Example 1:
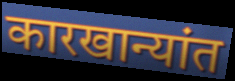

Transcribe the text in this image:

कारखान्यांत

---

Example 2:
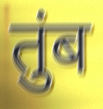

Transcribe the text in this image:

तुंब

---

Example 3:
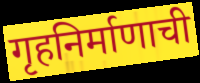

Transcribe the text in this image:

गृहनिर्माणाची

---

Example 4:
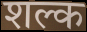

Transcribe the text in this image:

शल्क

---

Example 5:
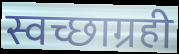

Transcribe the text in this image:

स्वच्छाग्रही